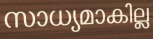
സാധ്യമാകില്ല